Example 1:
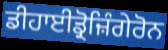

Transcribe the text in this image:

ਡੀਹਾਈਡ੍ਰੋਜ਼ਿੰਗੇਰੋਨ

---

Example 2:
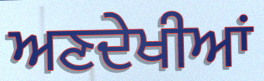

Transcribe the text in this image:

ਅਣਦੇਖੀਆਂ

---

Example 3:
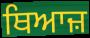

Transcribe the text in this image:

ਥਿਆਜ਼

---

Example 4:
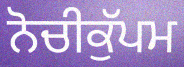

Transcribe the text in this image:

ਨੋਚੀਕੁੱਪਮ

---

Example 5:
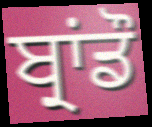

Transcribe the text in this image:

ਬ੍ਰਾਂਡੌ